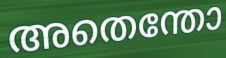
അതെന്തോ